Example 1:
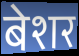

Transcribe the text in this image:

बेशर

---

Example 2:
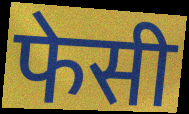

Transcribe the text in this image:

फेसी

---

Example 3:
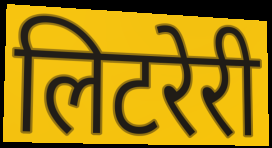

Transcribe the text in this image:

लिटरेरी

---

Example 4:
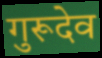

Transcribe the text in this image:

गुरूदेव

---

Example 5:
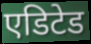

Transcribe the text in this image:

एडिटेड